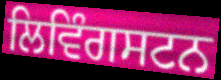
ਲਿਵਿੰਗਸਟਨ